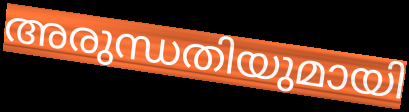
അരുന്ധതിയുമായി